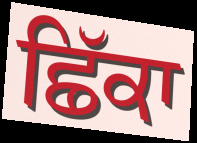
ਛਿੱਕਾ